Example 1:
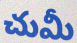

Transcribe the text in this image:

చుమీ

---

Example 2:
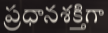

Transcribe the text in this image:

ప్రధానశక్తిగా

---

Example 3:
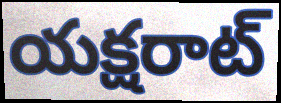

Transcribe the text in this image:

యక్షరాట్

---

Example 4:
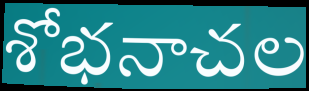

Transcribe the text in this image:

శోభనాచల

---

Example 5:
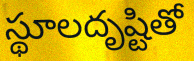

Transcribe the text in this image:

స్థూలదృష్టితో